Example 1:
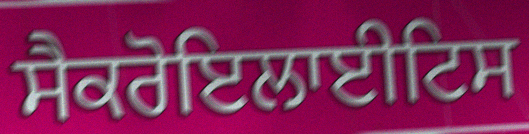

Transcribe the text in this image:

ਸੈਕਰੋਇਲਾਈਟਿਸ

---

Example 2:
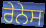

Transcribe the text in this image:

ਰੇਨੇਸ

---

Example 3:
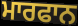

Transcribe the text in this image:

ਮਾਰਫਾਨ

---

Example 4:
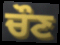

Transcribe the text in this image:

ਚੌਣ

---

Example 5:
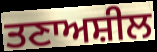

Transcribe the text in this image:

ਤਣਾਅਸ਼ੀਲ